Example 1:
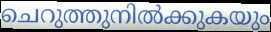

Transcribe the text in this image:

ചെറുത്തുനിൽക്കുകയും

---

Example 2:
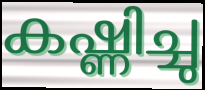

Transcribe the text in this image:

കഷ്ണിച്ചു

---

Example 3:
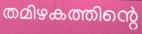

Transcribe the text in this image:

തമിഴകത്തിന്റെ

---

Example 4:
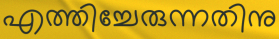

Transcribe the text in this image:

എത്തിച്ചേരുന്നതിനു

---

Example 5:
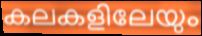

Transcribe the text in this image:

കലകളിലേയും